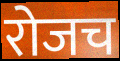
रोजच